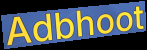
Adbhoot